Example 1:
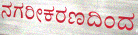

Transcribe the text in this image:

ನಗರೀಕರಣದಿಂದ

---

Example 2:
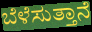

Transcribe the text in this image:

ಬೆಳೆಸುತ್ತಾನೆ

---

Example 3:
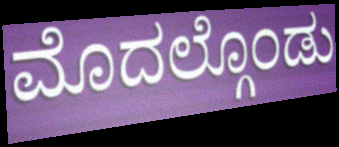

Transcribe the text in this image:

ಮೊದಲ್ಗೊಂಡು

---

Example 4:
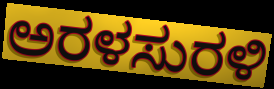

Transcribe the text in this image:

ಅರಳಸುರಳಿ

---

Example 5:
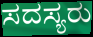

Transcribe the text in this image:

ಸದಸ್ಯರು